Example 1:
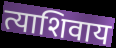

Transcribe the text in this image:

त्याशिवाय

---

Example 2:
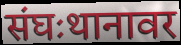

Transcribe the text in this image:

संघःथानावर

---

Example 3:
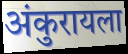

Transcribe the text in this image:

अंकुरायला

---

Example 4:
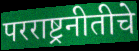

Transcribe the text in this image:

परराष्ट्रनीतीचे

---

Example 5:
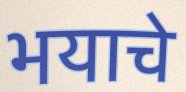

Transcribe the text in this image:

भयाचे